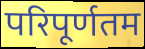
परिपूर्णतम